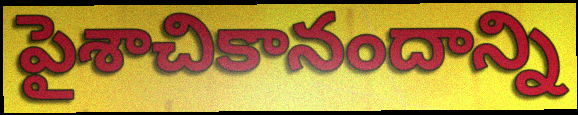
పైశాచికానందాన్ని